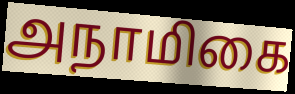
அநாமிகை